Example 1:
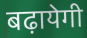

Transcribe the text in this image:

बढ़ायेगी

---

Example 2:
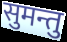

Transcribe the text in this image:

सुमन्तु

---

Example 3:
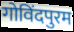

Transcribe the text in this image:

गोविंदपुरम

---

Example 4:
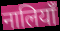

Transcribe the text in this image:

नालियाँ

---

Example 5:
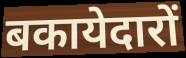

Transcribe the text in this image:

बकायेदारों